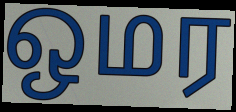
ஒமர